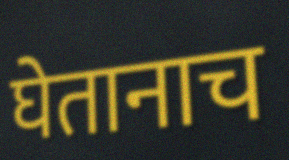
घेतानाच